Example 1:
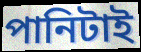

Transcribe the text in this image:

পানিটাই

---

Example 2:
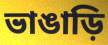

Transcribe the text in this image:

ভাঙাড়ি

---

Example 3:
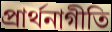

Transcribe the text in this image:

প্রার্থনাগীতি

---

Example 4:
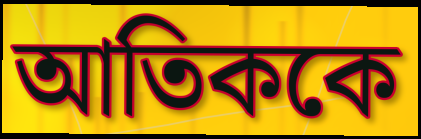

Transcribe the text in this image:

আতিককে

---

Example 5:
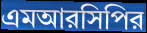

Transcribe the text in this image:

এমআরসিপির